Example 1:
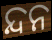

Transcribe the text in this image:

ନ୍ଦନ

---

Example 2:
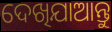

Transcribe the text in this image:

ଦେଖିଯାଆନ୍ତୁ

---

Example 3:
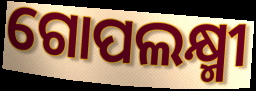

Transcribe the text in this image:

ଗୋପଲକ୍ଷ୍ମୀ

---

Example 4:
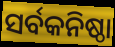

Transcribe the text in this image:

ସର୍ବକନିଷ୍ଠା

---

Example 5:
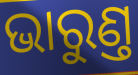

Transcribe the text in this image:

ଭାରୁଣ୍ତ